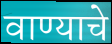
वाण्याचे